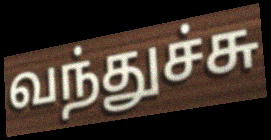
வந்துச்சு